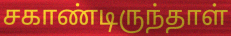
சகாண்டிருந்தாள்